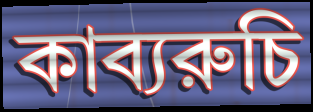
কাব্যরুচি